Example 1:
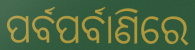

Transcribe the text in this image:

ପର୍ବପର୍ବାଣିରେ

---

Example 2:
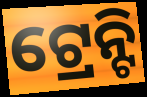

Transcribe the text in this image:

ଟ୍ରେନ୍ଟି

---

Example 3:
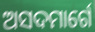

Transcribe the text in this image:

ଅସଦମାର୍ଗେ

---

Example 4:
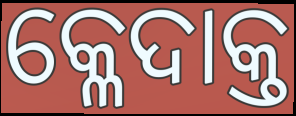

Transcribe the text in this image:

କ୍ଳେଦାକ୍ତ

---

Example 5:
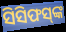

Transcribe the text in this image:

ସିସିଫସ୍‌ଙ୍କ